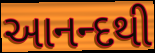
આનન્દથી